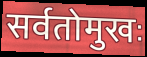
सर्वतोमुखः